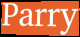
Parry